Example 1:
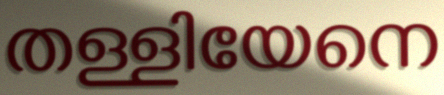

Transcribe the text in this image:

തള്ളിയേനെ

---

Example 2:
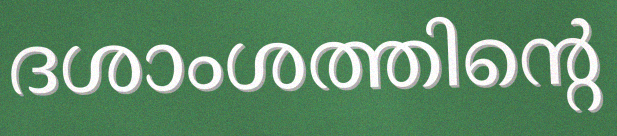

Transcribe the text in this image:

ദശാംശത്തിന്റെ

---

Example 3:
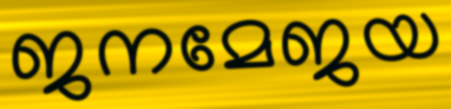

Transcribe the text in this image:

ജനമേജയ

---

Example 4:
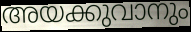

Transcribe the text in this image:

അയക്കുവാനും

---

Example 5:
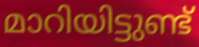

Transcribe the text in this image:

മാറിയിട്ടുണ്ട്